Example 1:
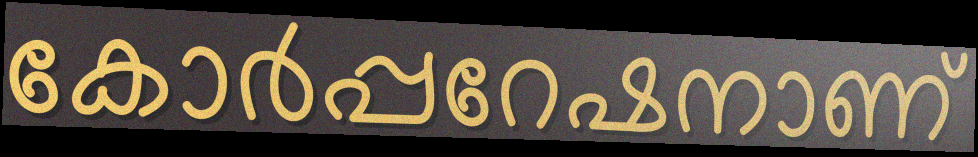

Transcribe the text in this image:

കോർപ്പറേഷനാണ്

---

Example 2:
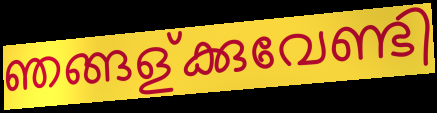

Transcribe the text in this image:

ഞങ്ങള്ക്കുവേണ്ടി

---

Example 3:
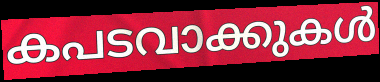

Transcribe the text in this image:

കപടവാക്കുകൾ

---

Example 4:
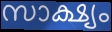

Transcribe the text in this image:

സാക്ഷ്യം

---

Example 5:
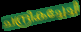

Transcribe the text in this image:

ചന്ദ്രികച്ചേച്ചി